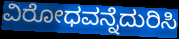
ವಿರೋಧವನ್ನೆದುರಿಸಿ